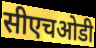
सीएचओडी